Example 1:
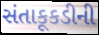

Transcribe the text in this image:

સંતાકૂકડીની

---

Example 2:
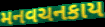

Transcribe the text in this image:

મનવચનકાય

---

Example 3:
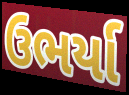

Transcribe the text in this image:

ઉભર્યા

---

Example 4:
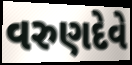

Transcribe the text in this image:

વરુણદેવે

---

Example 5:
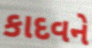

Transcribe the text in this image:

કાદવને